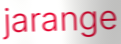
jarange